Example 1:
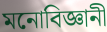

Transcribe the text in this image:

মনোবিজ্ঞানী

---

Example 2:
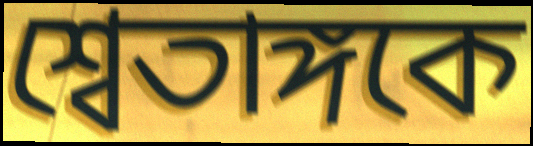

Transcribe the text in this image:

শ্বেতাঙ্গকে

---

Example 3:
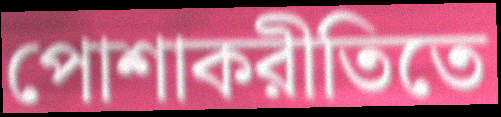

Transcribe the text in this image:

পোশাকরীতিতে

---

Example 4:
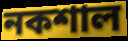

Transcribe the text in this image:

নকশাল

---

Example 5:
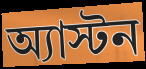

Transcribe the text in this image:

অ্যাস্টন